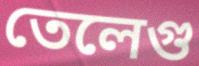
তেলেগু